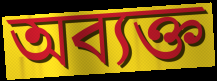
অব্যক্ত